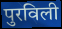
पुरविली